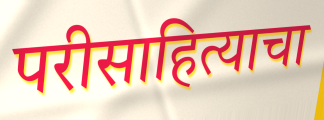
परीसाहित्याचा